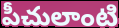
పీచులాంటి